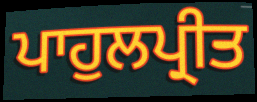
ਪਾਹੁਲਪ੍ਰੀਤ